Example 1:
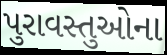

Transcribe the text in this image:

પુરાવસ્તુઓના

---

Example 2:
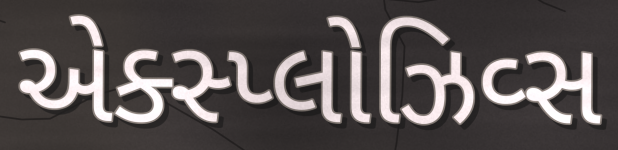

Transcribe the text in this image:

એક્સ્પ્લોઝિવ્સ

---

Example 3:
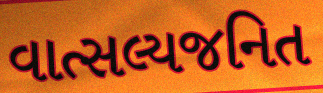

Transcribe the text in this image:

વાત્સલ્યજનિત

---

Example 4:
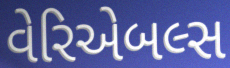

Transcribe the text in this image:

વેરિએબલ્સ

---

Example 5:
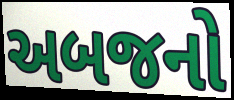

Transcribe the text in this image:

અબજનો